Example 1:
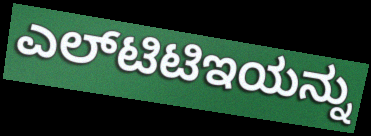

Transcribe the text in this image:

ಎಲ್‌ಟಿಟಿಇಯನ್ನು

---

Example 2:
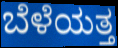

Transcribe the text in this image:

ಬೆಳೆಯತ್ತ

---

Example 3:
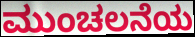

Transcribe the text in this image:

ಮುಂಚಲನೆಯ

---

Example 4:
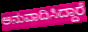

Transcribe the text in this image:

ಅನುವಾದಿಸಿದ್ದಾರೆ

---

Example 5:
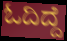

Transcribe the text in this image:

ಓದಿದ್ದೆ